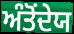
ਅੰਤੋਂਦੇਯ